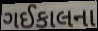
ગઈકાલના